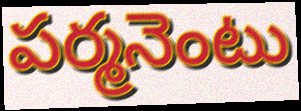
పర్మనెంటు